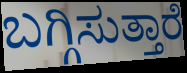
ಬಗ್ಗಿಸುತ್ತಾರೆ